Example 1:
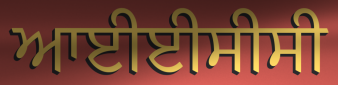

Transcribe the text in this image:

ਆਈਈਸੀਸੀ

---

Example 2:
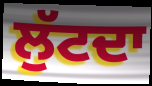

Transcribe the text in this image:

ਲੁੱਟਦਾ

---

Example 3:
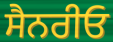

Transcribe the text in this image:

ਸੈਨਰੀਓ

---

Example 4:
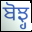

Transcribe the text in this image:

ਬੋਝ੍ਹ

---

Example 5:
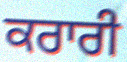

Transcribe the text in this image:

ਕਰਾਰੀ